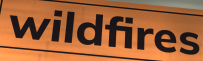
wildfires